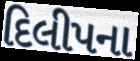
દિલીપના